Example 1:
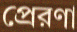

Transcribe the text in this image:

প্রেরণা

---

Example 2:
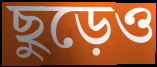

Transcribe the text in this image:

ছুড়েও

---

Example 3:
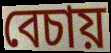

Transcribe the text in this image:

বেচায়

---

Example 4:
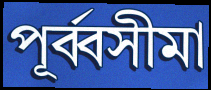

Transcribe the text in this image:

পূর্ব্বসীমা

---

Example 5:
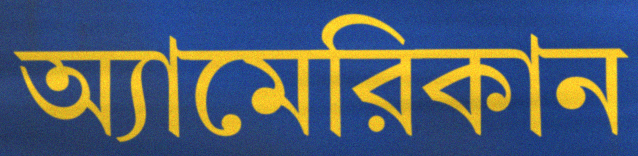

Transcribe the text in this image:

অ্যামেরিকান